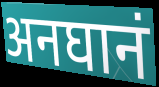
अनघानं